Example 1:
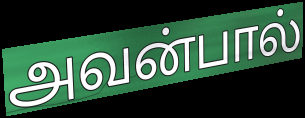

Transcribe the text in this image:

அவன்பால்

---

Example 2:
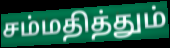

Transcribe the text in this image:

சம்மதித்தும்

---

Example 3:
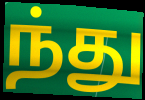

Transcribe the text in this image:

ந்து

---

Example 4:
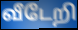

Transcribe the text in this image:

வீடேறி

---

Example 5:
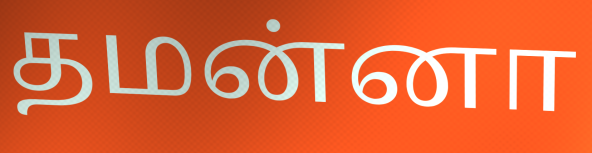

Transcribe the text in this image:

தமன்னா